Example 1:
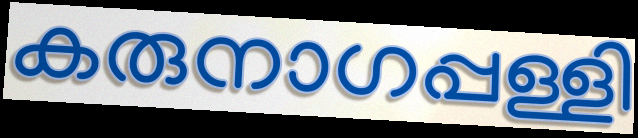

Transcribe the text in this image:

കരുനാഗപ്പള്ളി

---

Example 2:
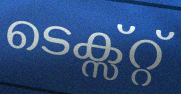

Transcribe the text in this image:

ടെക്സ്റ്റ്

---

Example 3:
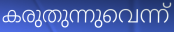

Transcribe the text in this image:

കരുതുന്നുവെന്ന്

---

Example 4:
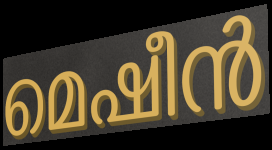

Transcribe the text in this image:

മെഷീൻ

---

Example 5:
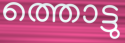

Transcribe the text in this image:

ത്തൊട്ടു